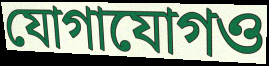
যোগাযোগও